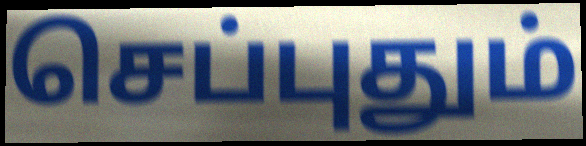
செப்புதும்